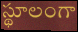
స్థూలంగా